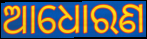
ଆଧୋରଣ